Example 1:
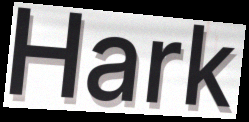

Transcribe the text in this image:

Hark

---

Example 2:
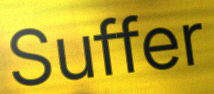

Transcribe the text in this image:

Suffer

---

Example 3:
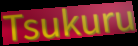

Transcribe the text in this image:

Tsukuru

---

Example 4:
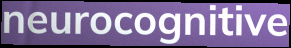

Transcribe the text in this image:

neurocognitive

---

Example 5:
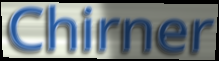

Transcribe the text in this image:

Chirner